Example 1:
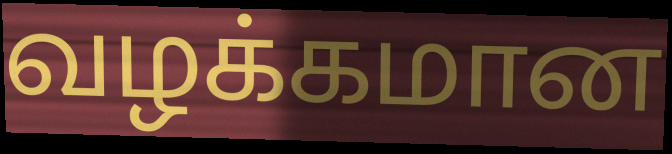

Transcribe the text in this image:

வழக்கமான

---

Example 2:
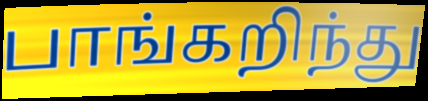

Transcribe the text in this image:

பாங்கறிந்து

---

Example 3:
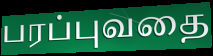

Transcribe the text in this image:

பரப்புவதை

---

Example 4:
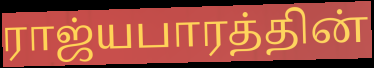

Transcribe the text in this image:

ராஜ்யபாரத்தின்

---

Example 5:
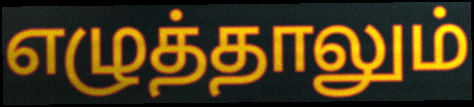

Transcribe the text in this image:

எழுத்தாலும்